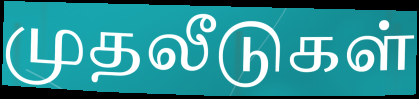
முதலீடுகள்